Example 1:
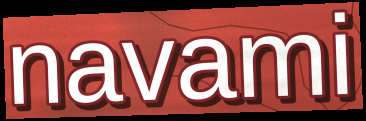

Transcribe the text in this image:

navami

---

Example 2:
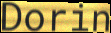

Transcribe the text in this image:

Dorin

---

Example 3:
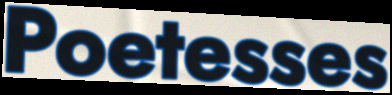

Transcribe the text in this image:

Poetesses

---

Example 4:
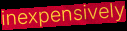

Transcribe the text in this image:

inexpensively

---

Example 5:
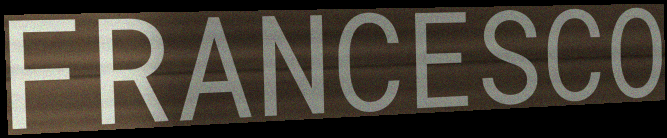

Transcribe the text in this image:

FRANCESCO